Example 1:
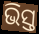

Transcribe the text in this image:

ଭିସ୍ତ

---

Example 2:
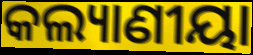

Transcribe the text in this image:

କଲ୍ୟାଣୀୟା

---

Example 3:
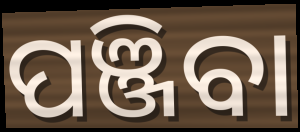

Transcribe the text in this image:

ପଞ୍ଜିବା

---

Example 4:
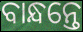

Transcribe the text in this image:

ବାନ୍ଧନ୍ତେ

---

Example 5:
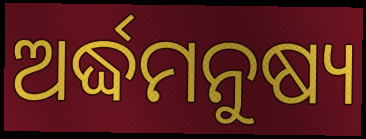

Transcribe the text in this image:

ଅର୍ଦ୍ଧମନୁଷ୍ୟ